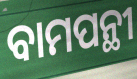
ବାମପନ୍ଥୀ